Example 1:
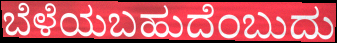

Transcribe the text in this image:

ಬೆಳೆಯಬಹುದೆಂಬುದು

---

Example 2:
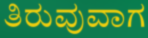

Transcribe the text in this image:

ತಿರುವುವಾಗ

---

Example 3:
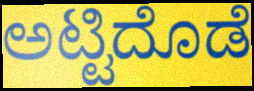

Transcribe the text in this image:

ಅಟ್ಟಿದೊಡೆ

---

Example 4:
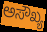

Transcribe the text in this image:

ಅಸೌಖ್ಯ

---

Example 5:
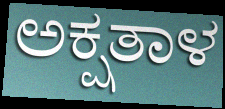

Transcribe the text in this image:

ಅಕ್ಷತಾಳ